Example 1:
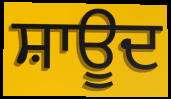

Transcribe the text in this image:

ਸ਼ਾਊਦ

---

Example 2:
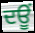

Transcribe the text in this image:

ਦਊਂ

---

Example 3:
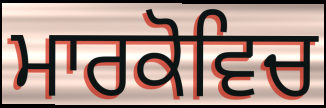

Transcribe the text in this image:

ਮਾਰਕੋਵਿਚ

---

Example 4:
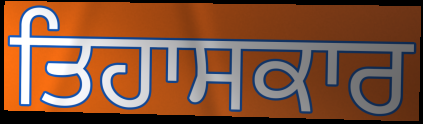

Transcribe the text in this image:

ਤਿਹਾਸਕਾਰ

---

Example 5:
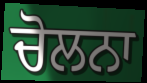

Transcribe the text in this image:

ਚੋਲਨਾ